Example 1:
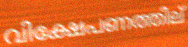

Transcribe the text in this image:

വിക്ഷേപണത്തില്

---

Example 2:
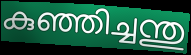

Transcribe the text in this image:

കുഞ്ഞിച്ചന്തു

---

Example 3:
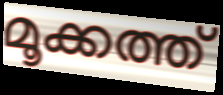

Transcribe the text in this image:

മൂക്കത്ത്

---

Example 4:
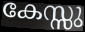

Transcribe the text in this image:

കേസ്സു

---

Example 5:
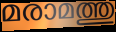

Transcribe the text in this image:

മരാമത്തു